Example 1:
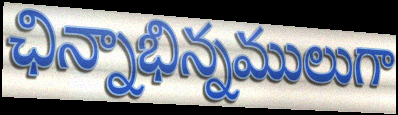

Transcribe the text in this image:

ఛిన్నాభిన్నములుగా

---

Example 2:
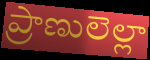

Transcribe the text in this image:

ప్రాణులెల్లా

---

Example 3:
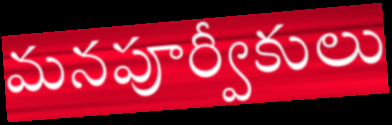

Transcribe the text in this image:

మనపూర్వీకులు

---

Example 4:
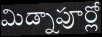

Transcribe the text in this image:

మిడ్నాపూర్లో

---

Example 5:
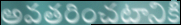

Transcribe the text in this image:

అవతరించటానికి